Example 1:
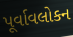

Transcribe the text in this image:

પૂર્વાવલોકન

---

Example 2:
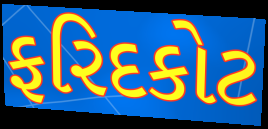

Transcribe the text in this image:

ફરિદકોટ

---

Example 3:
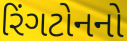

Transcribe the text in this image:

રિંગટોનનો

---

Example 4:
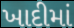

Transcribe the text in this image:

ખાદીમાં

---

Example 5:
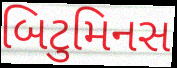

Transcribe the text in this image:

બિટુમિનસ